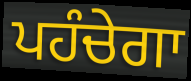
ਪਹੰਚੇਗਾ